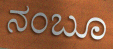
ನಂಬೂ